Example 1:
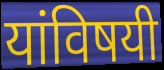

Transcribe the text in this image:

यांविषयी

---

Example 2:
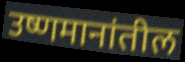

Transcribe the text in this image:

उष्णमानांतील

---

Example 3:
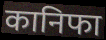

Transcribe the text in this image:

कानिफा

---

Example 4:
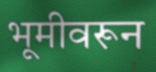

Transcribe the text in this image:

भूमीवरून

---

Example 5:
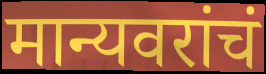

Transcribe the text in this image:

मान्यवरांचं